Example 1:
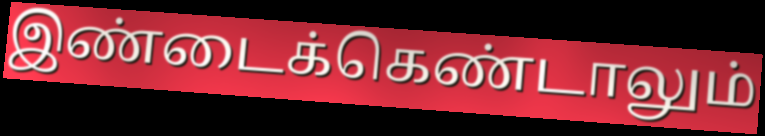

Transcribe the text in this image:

இண்டைக்கெண்டாலும்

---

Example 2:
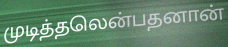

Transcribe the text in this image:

முடித்தலென்பதனான்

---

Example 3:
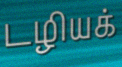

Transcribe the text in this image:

டழியக்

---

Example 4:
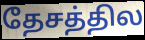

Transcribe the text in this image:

தேசத்தில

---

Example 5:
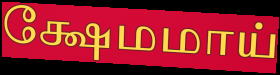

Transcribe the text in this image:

க்ஷேமமாய்